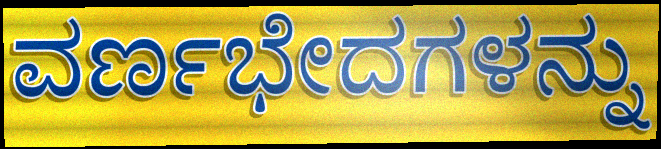
ವರ್ಣಭೇದಗಳನ್ನು